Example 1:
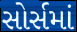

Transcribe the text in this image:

સોર્સમાં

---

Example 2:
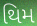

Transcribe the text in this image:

થિમ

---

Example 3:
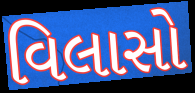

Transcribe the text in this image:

વિલાસો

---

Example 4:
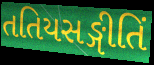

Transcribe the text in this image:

તતિયસઙ્ગીતિં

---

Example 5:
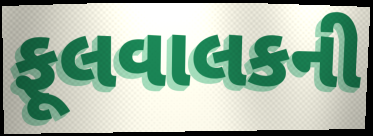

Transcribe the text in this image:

ફૂલવાલકની